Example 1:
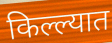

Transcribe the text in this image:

किल्ल्यात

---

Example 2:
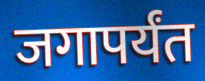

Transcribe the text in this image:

जगापर्यंत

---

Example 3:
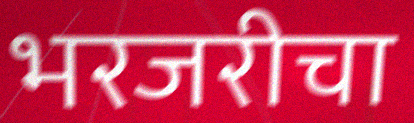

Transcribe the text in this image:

भरजरीचा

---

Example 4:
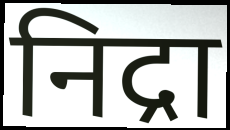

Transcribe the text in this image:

निद्रा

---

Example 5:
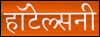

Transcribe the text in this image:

हॉटेल्सनी